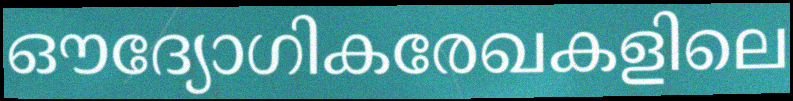
ഔദ്യോഗികരേഖകളിലെ